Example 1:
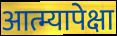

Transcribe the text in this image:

आत्म्यापेक्षा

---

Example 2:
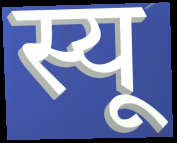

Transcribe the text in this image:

स्यू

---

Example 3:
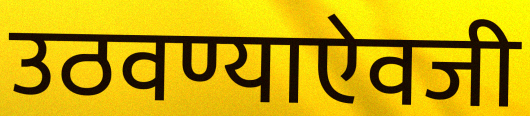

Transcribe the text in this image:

उठवण्याऐवजी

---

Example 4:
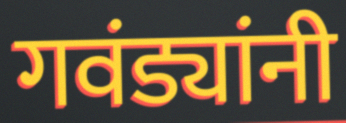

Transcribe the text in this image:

गवंड्यांनी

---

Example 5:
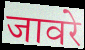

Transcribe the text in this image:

जावरे